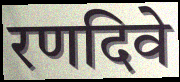
रणदिवे